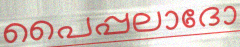
പൈപ്പലാദോ